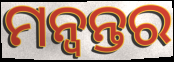
ମନ୍ୱନ୍ତର